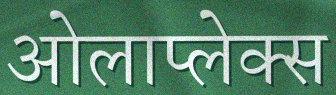
ओलाप्लेक्स